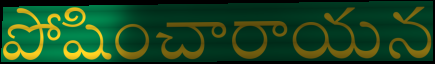
పోషించారాయన